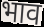
भाव